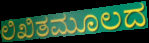
ಲಿಖಿತಮೂಲದ